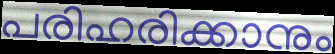
പരിഹരിക്കാനും